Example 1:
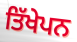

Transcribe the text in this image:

ਤਿੱਖੇਪਨ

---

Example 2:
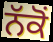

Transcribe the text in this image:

ਨੱਕੋਂ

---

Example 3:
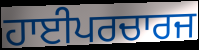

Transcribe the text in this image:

ਹਾਈਪਰਚਾਰਜ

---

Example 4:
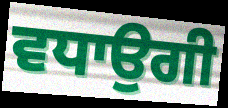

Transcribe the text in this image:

ਵਧਾਉਗੀ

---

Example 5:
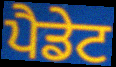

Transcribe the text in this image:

ਪੈਡੇਟ